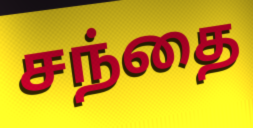
சந்தை